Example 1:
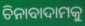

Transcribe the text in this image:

ଚିନାବାଦାମକୁ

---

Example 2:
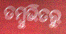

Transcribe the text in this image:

ତମ୍ବୁଭିତରୁ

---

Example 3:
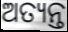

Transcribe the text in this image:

ଅତ୍ୟନ୍ତ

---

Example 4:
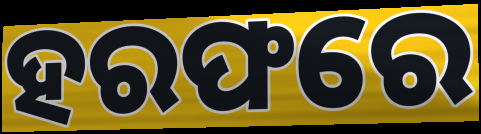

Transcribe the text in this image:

ହରଫରେ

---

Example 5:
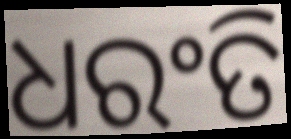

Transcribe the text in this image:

ଧରଂତି